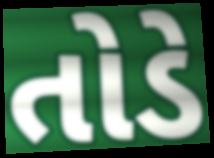
તોડે